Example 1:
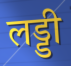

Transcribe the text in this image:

लड्डी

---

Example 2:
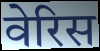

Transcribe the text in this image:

वेरिस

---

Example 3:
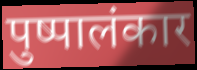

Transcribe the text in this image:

पुष्पालंकार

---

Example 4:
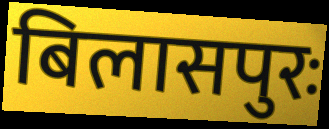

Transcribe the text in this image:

बिलासपुरः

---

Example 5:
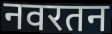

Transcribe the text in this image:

नवरतन